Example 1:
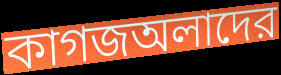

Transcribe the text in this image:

কাগজঅলাদের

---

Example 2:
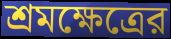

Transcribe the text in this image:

শ্রমক্ষেত্রের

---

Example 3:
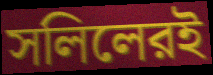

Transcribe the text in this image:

সলিলেরই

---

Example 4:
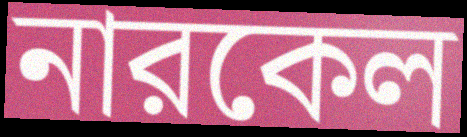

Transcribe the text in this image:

নারকেল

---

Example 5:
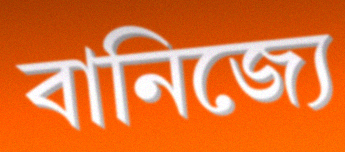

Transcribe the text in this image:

বানিজ্যে